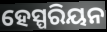
ହେସ୍ପରିୟନ